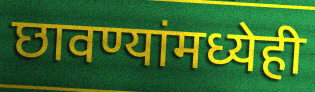
छावण्यांमध्येही